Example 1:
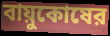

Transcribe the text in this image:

বায়ুকোষের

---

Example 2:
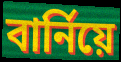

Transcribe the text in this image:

বার্নিয়ে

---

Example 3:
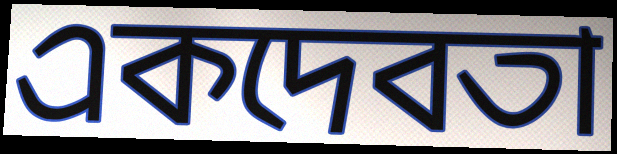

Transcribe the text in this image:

একদেবতা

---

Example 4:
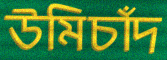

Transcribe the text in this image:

উমিচাঁদ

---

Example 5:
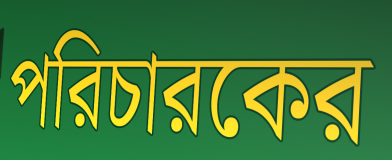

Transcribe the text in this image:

পরিচারকের